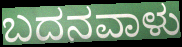
ಬದನವಾಳು